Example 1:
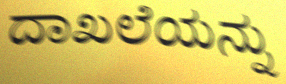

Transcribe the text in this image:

ದಾಖಲೆಯನ್ನು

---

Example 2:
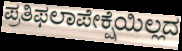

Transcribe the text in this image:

ಪ್ರತಿಫಲಾಪೇಕ್ಷೆಯಿಲ್ಲದ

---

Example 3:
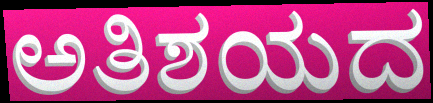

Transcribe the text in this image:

ಅತಿಶಯದ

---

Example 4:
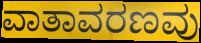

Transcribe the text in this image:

ವಾತಾವರಣವು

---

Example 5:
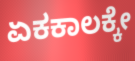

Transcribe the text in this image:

ಏಕಕಾಲಕ್ಕೇ